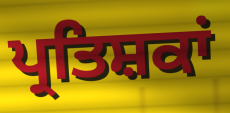
ਪ੍ਰਤਿਸ਼ਕਾਂ